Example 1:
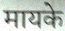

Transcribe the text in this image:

मायके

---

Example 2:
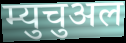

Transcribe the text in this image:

म्युचुअल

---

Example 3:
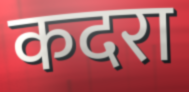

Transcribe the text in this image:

कदरा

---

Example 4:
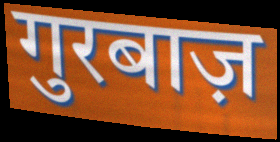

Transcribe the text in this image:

गुरबाज़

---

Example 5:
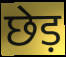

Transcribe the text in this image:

छेड़